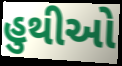
હુથીઓ